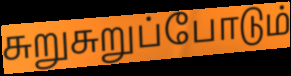
சுறுசுறுப்போடும்